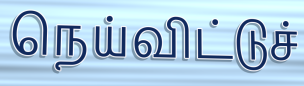
நெய்விட்டுச்